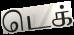
டெக்